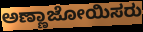
ಅಣ್ಣಾಜೋಯಿಸರು